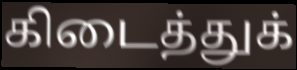
கிடைத்துக்